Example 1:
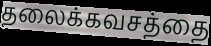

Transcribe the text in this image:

தலைக்கவசத்தை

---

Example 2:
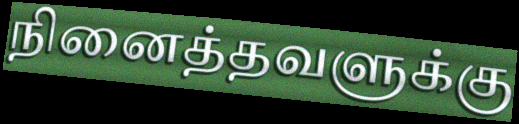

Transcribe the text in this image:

நினைத்தவளுக்கு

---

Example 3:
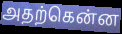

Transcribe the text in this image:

அதற்கென்ன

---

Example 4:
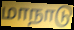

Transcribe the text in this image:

மாநாடு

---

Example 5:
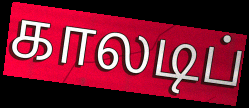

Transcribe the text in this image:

காலடிப்